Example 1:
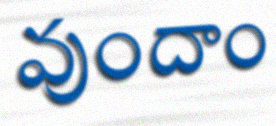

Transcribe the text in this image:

వుందాం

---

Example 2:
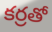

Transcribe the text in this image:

కర్రతో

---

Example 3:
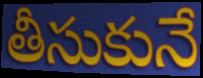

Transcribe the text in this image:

తీసుకునే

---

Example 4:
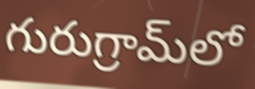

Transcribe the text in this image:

గురుగ్రామ్‌లో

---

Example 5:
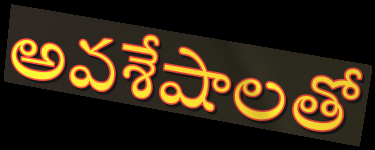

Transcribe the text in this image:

అవశేషాలతో